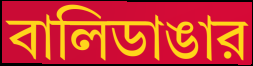
বালিডাঙার